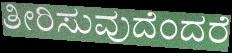
ತೀರಿಸುವುದೆಂದರೆ